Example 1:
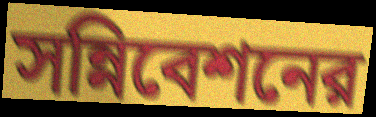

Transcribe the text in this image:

সন্নিবেশনের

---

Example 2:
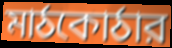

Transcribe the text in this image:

মাঠকোঠার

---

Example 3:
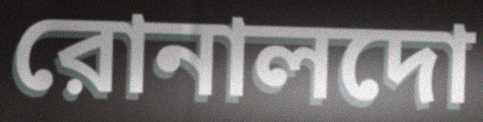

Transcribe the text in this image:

রোনালদো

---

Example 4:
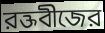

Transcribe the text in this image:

রক্তবীজের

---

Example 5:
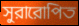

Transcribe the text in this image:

সুরারোপিত